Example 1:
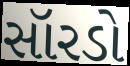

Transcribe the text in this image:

સૉરડો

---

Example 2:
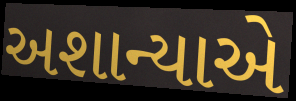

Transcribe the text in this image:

અશાન્યાએ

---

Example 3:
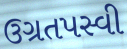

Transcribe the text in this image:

ઉગ્રતપસ્વી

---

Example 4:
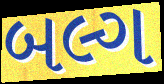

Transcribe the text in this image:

બલ્ગ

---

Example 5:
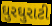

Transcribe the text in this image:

ઘુરઘુરાટી